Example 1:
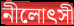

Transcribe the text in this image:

নীলোৎসী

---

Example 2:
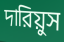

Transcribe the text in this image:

দারিয়ুস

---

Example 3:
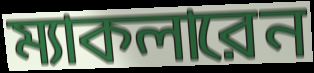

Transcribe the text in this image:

ম্যাকলারেন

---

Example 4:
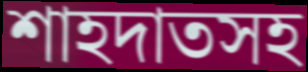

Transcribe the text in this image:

শাহদাতসহ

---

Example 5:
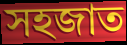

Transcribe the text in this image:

সহজাত